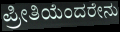
ಪ್ರೀತಿಯೆಂದರೇನು